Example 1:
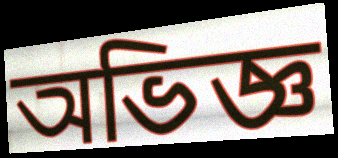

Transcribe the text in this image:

অভিজ্ঞ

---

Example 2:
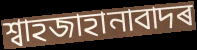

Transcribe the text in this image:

শ্বাহজাহানাবাদৰ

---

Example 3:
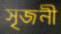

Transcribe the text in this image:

সৃজনী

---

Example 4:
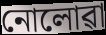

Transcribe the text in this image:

নোলোৱা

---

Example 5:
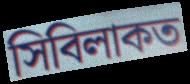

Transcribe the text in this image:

সিবিলাকত